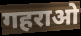
गहराओ